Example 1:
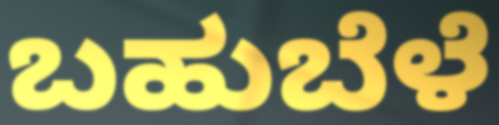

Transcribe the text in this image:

ಬಹುಬೆಳೆ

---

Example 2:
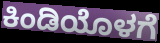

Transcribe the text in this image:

ಕಿಂಡಿಯೊಳಗೆ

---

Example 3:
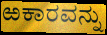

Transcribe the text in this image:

ಱಕಾರವನ್ನು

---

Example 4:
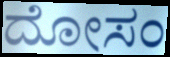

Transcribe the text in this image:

ದೋಸಂ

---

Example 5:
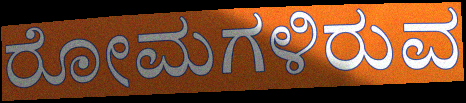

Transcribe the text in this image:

ರೋಮಗಳಿರುವ